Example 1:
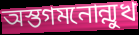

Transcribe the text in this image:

অস্তগমনোন্মুখ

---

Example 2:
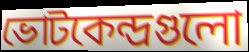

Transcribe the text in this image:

ভোটকেন্দ্রগুলো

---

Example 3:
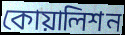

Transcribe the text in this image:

কোয়ালিশন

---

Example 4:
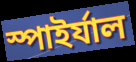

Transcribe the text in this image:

স্পাইর্যাল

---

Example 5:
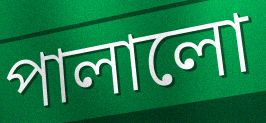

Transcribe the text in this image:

পালালো